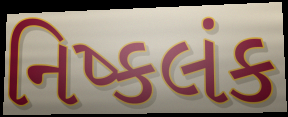
નિષ્કલંક